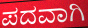
ಪದವಾಗಿ